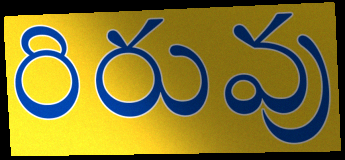
రిరువు